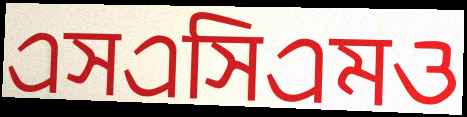
এসএসিএমও